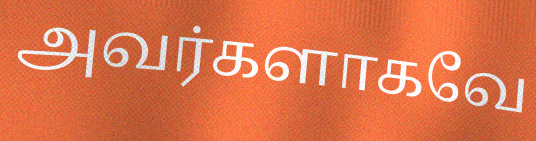
அவர்களாகவே